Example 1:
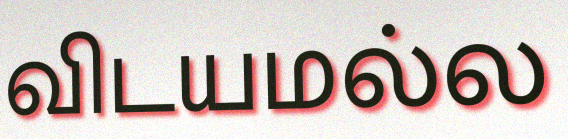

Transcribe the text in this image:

விடயமல்ல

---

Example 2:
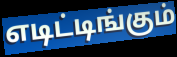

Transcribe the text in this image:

எடிட்டிங்கும்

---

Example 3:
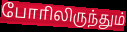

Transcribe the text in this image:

போரிலிருந்தும்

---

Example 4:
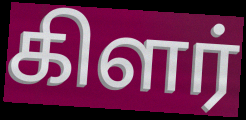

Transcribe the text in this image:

கிளர்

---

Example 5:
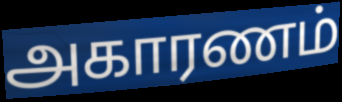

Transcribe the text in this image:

அகாரணம்